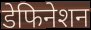
डेफिनेशन